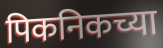
पिकनिकच्या